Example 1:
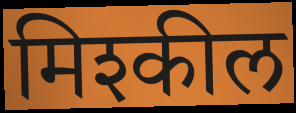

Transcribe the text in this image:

मिश्कील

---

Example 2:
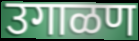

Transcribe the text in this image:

उगाळण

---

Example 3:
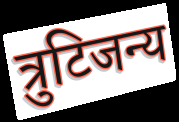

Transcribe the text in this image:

त्रुटिजन्य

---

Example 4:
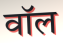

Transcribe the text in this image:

वॉल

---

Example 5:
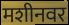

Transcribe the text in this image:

मशीनवर